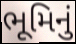
ભૂમિનું